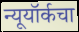
न्यूयॉर्कचा